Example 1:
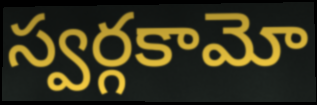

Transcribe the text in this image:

స్వర్గకామో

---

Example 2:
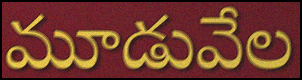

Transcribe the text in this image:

మూడువేల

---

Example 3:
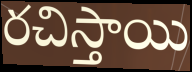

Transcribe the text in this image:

రచిస్తాయి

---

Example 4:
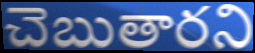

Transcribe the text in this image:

చెబుతారని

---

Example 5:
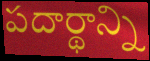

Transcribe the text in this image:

పదార్థాన్ని